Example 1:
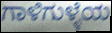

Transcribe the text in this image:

ಗಾಳಿಗುಳ್ಳೆಯ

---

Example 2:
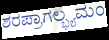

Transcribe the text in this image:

ಶರಪ್ರಾಗಲ್ಭ್ಯಮಂ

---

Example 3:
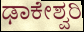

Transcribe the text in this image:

ಢಾಕೇಶ್ವರಿ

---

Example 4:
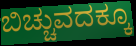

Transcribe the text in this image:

ಬಿಚ್ಚುವದಕ್ಕೂ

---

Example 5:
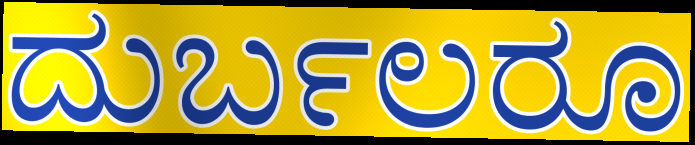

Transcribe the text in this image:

ದುರ್ಬಲರೂ